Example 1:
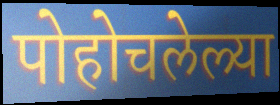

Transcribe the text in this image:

पोहोचलेल्या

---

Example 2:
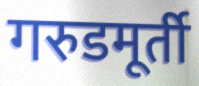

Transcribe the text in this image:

गरुडमूर्ती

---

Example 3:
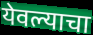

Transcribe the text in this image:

येवल्याचा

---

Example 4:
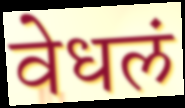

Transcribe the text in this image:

वेधलं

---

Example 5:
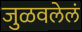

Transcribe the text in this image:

जुळवलेलं